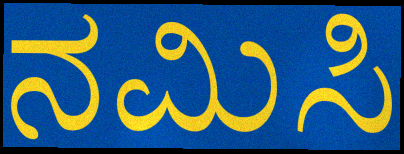
ನಮಿಸಿ